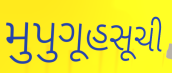
મુપુગૂહસૂચી